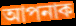
আপনাক